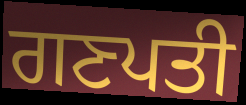
ਗਣਪਤੀ